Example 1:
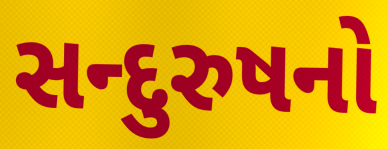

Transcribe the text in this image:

સન્દુરુષનો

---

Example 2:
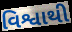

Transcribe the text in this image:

વિશ્વાથી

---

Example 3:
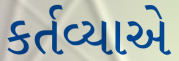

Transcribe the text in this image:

કર્તવ્યાએ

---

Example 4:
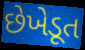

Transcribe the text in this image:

છેખેડૂત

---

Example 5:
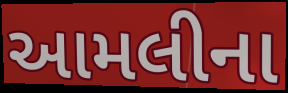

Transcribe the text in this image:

આમલીના